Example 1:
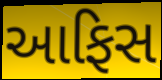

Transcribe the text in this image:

આફિસ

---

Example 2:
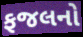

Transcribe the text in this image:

ફજલનો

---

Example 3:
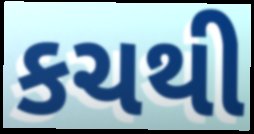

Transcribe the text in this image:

કચથી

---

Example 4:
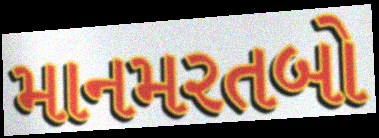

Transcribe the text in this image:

માનમરતબો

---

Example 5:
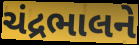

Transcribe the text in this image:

ચંદ્રભાલને